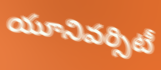
యూనివర్సిటీ